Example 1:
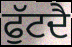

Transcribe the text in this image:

ਫੁੱਟਦੈ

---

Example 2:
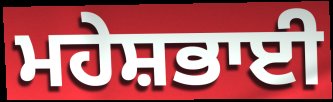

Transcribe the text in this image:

ਮਹੇਸ਼ਭਾਈ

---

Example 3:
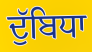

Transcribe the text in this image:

ਦੁੱਬਿਧਾ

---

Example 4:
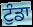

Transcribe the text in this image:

ਟੁੰਡਾ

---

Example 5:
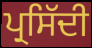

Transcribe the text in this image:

ਪ੍ਰਸਿੱਦੀ